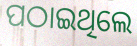
ପଠାଇଥିଲେ